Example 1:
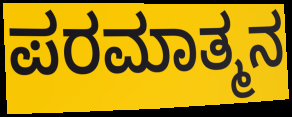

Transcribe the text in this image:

ಪರಮಾತ್ಮನ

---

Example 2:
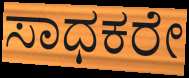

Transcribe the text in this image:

ಸಾಧಕರೇ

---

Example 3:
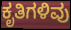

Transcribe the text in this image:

ಕೃತಿಗಳಿವು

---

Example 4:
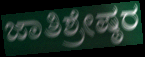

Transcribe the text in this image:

ಜಾತಿಶ್ರೇಷ್ಠರ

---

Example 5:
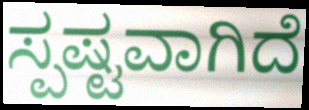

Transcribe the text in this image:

ಸ್ಪಷ್ಟವಾಗಿದೆ